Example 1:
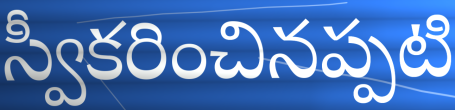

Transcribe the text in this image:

స్వీకరించినప్పటి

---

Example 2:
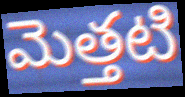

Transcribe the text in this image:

మెత్తటి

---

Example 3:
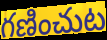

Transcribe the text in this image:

గణించుట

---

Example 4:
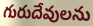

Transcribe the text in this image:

గురుదేవులను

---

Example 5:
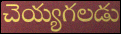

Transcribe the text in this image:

చెయ్యగలడు